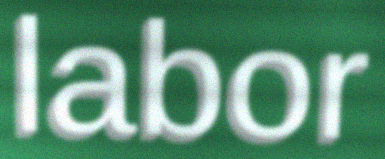
labor